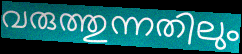
വരുത്തുന്നതിലും